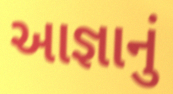
આજ્ઞાનું